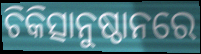
ଚିକିତ୍ସାନୁଷ୍ଠାନରେ